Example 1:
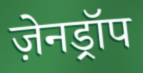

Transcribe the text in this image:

ज़ेनड्रॉप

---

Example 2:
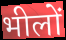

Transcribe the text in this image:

भीलों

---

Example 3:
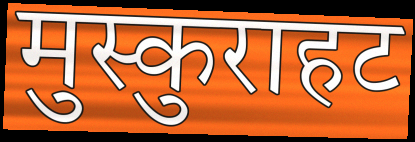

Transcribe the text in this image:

मुस्कुराहट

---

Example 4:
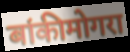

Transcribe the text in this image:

बांकीमोगरा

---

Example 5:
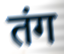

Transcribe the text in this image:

तंग